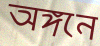
অঙ্গনে